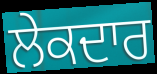
ਲੇਕਦਾਰ